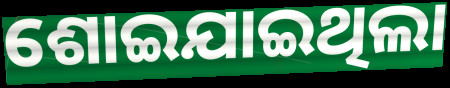
ଶୋଇଯାଇଥିଲା